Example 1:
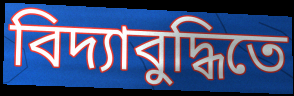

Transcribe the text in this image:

বিদ্যাবুদ্ধিতে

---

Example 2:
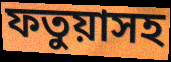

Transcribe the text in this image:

ফতুয়াসহ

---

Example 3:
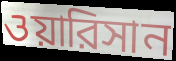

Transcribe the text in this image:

ওয়ারিসান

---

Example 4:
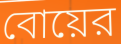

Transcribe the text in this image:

বোয়ের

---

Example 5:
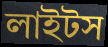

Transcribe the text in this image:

লাইটস